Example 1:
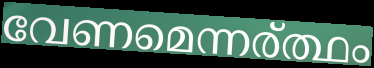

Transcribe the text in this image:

വേണമെന്നര്ത്ഥം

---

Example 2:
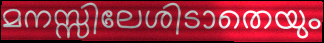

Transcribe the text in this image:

മനസ്സിലേശിടാതെയും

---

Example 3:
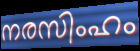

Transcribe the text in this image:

നരസിംഹം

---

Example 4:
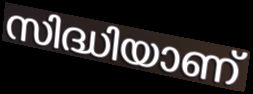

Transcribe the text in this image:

സിദ്ധിയാണ്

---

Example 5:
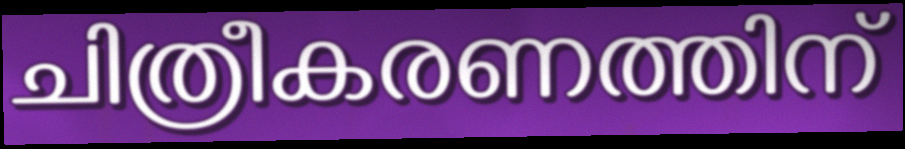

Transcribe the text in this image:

ചിത്രീകരണത്തിന്